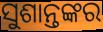
ସୁଶାନ୍ତଙ୍କର